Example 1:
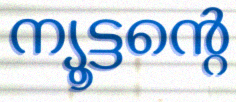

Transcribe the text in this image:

ന്യൂട്ടന്റെ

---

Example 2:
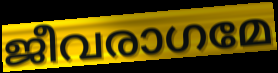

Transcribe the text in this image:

ജീവരാഗമേ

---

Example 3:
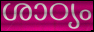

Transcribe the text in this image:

ശാഠ്യം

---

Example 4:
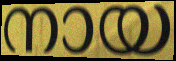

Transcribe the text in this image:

നായ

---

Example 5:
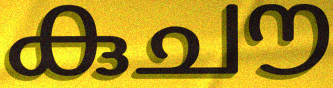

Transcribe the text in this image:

കുചൗ